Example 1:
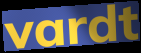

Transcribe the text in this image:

vardt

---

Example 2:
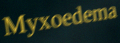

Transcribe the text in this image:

Myxoedema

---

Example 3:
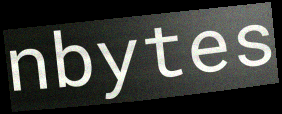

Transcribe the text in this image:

nbytes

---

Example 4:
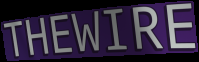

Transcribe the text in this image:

THEWIRE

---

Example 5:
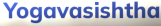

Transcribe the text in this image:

Yogavasishtha